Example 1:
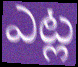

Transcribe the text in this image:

ఎట్ల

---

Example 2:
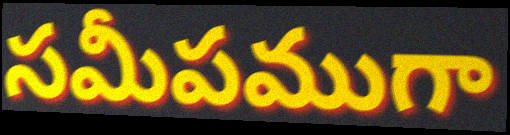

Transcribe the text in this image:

సమీపముగా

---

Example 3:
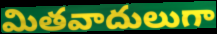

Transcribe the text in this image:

మితవాదులుగా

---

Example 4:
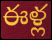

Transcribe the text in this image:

ఈళ్ల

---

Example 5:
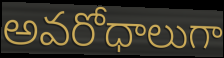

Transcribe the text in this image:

అవరోధాలుగా